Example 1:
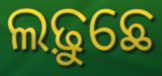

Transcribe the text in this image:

ଲଢ଼ୁଛେ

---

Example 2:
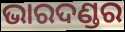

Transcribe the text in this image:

ଭାରଦଣ୍ଡର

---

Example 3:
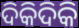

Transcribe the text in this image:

ଦିକିଦିକି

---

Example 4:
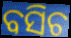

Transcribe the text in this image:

ବସିଚ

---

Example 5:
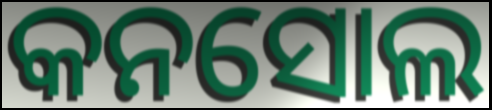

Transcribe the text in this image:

କନସୋଲ